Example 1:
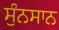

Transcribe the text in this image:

ਸੁੰਨਸਾਨ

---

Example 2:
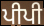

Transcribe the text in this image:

ਪੀਪੀ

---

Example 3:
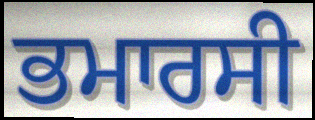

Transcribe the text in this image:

ਭਮਾਰਸੀ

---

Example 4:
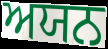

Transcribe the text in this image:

ਅਯਨ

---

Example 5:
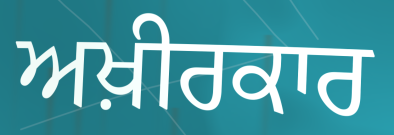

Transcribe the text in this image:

ਅਖ਼ੀਰਕਾਰ